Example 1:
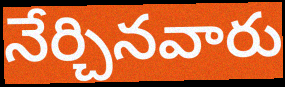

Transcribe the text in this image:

నేర్చినవారు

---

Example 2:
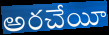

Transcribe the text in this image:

అరచేయీ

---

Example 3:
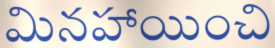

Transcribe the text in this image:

మినహాయించి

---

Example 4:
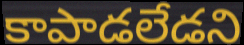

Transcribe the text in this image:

కాపాడలేడని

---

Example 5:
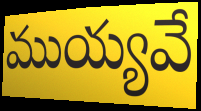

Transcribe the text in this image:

ముయ్యవే